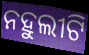
ନହୁଲୀଟି